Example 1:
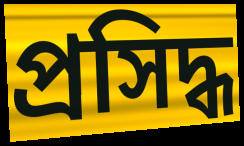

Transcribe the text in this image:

প্ৰসিদ্ধ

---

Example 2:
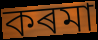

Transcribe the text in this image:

কৰমা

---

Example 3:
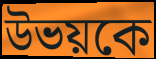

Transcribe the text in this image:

উভয়কে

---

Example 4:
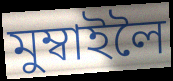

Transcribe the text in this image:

মুম্বাইলৈ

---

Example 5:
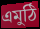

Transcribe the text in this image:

এমুঠি